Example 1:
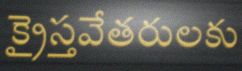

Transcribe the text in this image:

క్రైస్తవేతరులకు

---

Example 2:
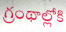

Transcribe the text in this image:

గ్రంథాల్లోకి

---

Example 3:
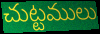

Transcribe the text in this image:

చుట్టములు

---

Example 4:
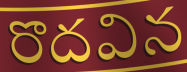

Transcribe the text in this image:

రొదవిన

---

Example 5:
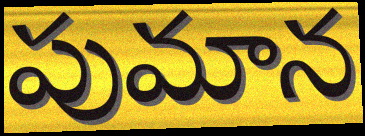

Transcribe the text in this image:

పుమాన